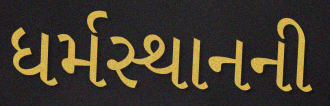
ધર્મસ્થાનની